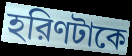
হরিণটাকে